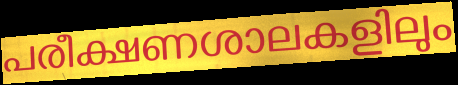
പരീക്ഷണശാലകളിലും